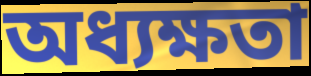
অধ্যক্ষতা